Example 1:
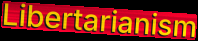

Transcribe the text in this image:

Libertarianism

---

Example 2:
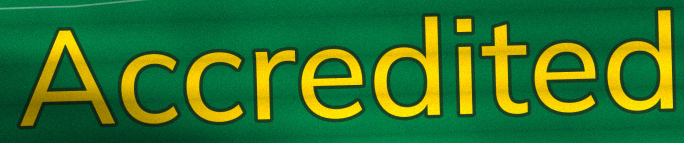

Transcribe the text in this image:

Accredited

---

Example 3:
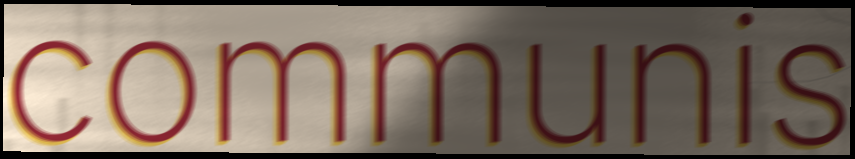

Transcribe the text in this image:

communis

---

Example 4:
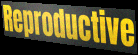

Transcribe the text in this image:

Reproductive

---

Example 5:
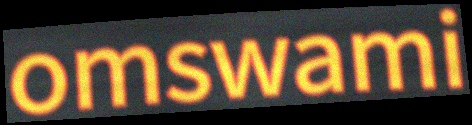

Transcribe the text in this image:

omswami